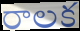
రాలక